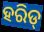
ହରିଡ୍